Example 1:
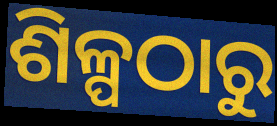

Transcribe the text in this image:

ଶିଳ୍ପଠାରୁ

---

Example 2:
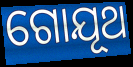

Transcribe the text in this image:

ଗୋଯୂଥ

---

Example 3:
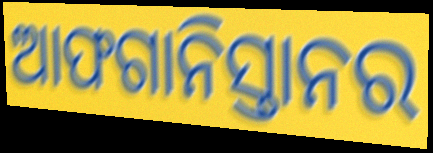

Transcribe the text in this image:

ଆଫଗାନିସ୍ତାନର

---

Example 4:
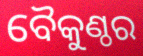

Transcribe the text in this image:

ବୈକୁଣ୍ଠର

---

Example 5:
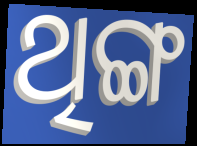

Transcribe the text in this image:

ଥିଙ୍ଗ